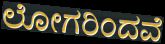
ಲೋಗರಿಂದವೆ